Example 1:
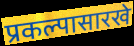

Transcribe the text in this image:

प्रकल्पासारखे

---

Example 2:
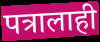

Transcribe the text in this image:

पत्रालाही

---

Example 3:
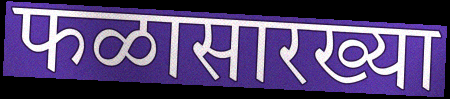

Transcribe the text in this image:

फळासारख्या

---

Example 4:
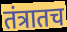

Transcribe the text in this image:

तंत्रातच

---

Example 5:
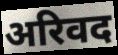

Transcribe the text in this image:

अरिवद